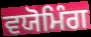
ਵਯੋਮਿੰਗ